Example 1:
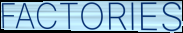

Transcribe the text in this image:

FACTORIES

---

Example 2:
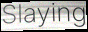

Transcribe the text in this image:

Slaying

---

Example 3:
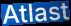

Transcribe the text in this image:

Atlast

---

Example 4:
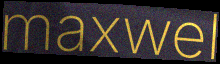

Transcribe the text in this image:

maxwel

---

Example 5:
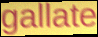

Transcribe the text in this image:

gallate